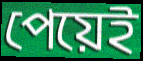
পেয়েই